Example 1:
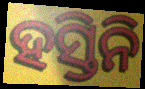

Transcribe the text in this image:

ହସ୍ତିନି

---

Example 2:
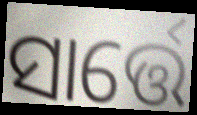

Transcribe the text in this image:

ସାର୍ତ୍ତେ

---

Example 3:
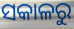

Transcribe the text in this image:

ସକାଳରୁ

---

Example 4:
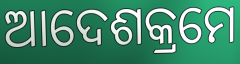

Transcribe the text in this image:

ଆଦେଶକ୍ରମେ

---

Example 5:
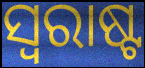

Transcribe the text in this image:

ସ୍ୱରାଷ୍ଟ